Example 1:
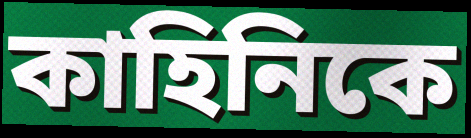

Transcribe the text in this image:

কাহিনিকে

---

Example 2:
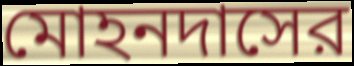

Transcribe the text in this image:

মোহনদাসের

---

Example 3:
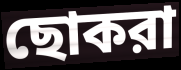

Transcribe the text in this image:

ছোকরা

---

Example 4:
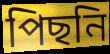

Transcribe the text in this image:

পিছনি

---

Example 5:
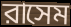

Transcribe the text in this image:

রাসেম